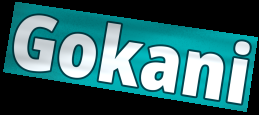
Gokani